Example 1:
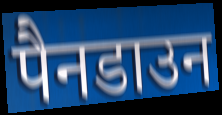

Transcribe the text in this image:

पैनडाउन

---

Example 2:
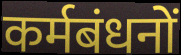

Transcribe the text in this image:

कर्मबंधनों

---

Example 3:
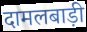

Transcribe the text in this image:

दामलबाड़ी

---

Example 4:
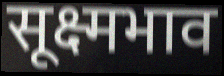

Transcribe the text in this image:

सूक्ष्मभाव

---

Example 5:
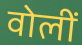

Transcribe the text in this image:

वोलीं